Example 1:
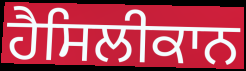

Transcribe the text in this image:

ਹੈਸਿਲੀਕਾਨ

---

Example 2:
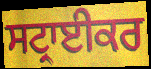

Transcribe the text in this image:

ਸਟ੍ਰਾਈਕਰ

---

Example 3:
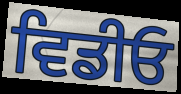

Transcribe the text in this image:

ਵਿਡੀਓ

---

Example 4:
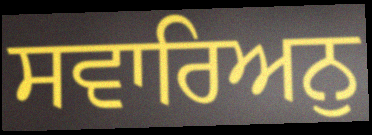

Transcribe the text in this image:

ਸਵਾਰਿਅਨੁ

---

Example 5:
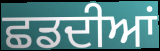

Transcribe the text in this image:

ਛਡਦੀਆਂ